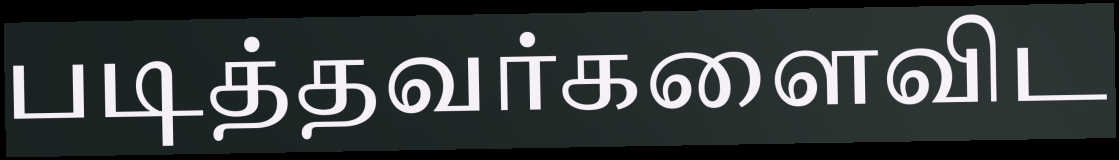
படித்தவர்களைவிட